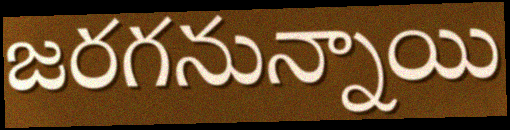
జరగనున్నాయి